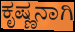
ಕೃಷ್ಣನಾಗಿ